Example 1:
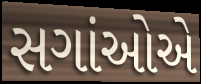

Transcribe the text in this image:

સગાંઓએ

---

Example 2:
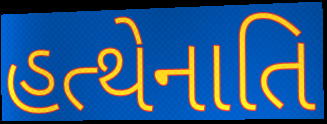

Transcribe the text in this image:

હત્થેનાતિ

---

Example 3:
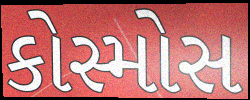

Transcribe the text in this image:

કોસ્મોસ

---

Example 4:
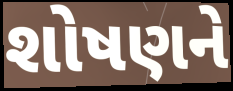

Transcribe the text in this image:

શોષણને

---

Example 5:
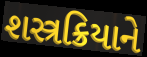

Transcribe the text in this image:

શસ્ત્રક્રિયાને